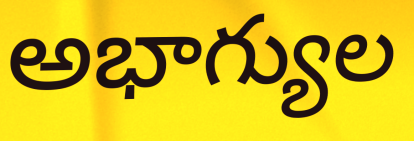
అభాగ్యుల